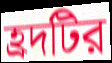
হ্রদটির